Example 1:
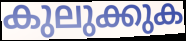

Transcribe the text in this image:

കുലുക്കുക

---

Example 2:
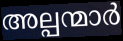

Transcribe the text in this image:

അല്പന്മാർ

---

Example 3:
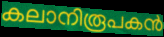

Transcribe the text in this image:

കലാനിരൂപകൻ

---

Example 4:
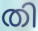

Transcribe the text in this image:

തി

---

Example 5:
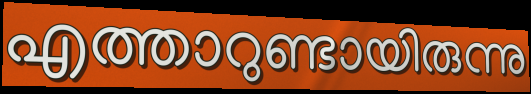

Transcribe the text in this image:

എത്താറുണ്ടായിരുന്നു